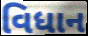
વિધાન